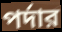
পর্দার